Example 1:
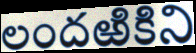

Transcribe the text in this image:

లందఱికిని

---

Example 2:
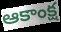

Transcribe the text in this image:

ఆకాంక్ష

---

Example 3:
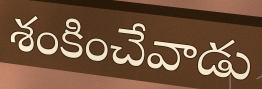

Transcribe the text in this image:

శంకించేవాడు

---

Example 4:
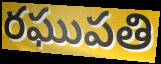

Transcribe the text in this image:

రఘుపతి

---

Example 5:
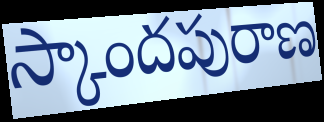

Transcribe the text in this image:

స్కాందపురాణ